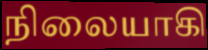
நிலையாகி